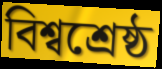
বিশ্বশ্ৰেষ্ঠ